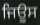
ਜਿਊਸ